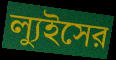
ল্যুইসের